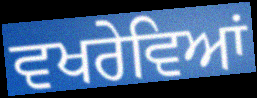
ਵਖਰੇਵਿਆਂ